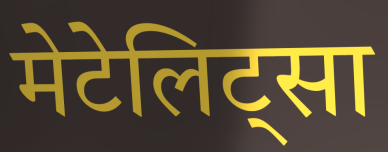
मेटेलिट्सा